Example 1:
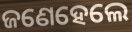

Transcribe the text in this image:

ଜଣେହେଲେ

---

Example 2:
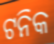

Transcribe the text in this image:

ଟନିକ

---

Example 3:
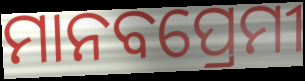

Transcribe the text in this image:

ମାନବପ୍ରେମୀ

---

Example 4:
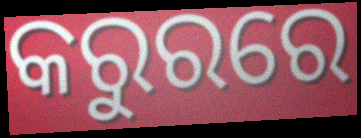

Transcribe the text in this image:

କରୁରରେ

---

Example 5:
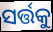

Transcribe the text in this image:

ସର୍ତ୍ତକୁ